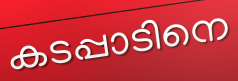
കടപ്പാടിനെ